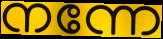
നന്നേ